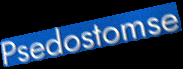
Psedostomse